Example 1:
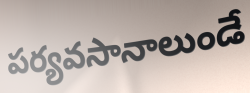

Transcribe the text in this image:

పర్యవసానాలుండే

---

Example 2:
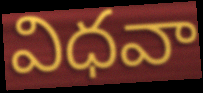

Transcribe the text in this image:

విధవా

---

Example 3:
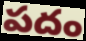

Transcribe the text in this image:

పదం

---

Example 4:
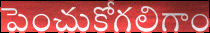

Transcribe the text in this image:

పెంచుకోగలిగాం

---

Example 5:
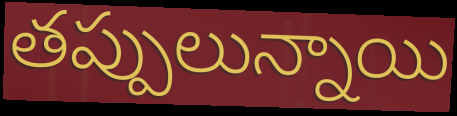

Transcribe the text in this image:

తప్పులున్నాయి